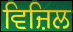
ਵਿਜ਼ਿਲ